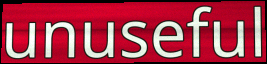
unuseful